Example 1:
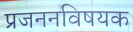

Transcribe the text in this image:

प्रजननविषयक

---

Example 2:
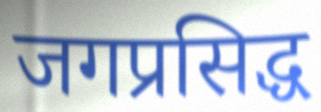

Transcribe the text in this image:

जगप्रसिद्ध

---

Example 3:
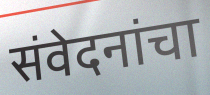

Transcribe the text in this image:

संवेदनांचा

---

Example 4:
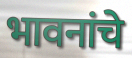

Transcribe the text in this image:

भावनांचे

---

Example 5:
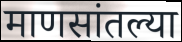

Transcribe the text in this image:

माणसांतल्या